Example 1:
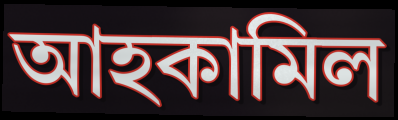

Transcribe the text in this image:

আহকামিল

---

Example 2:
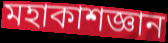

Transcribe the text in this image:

মহাকাশজ্ঞান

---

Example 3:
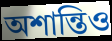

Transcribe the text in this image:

অশান্তিও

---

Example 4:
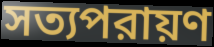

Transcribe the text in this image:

সত্যপরায়ণ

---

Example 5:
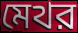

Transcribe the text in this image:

মেথর